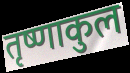
तृष्णाकुल